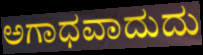
ಅಗಾಧವಾದುದು